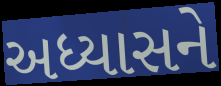
અધ્યાસને